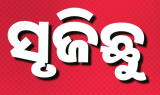
ସୃଜିଛୁ